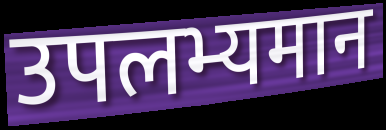
उपलभ्यमान